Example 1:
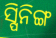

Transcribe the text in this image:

ସ୍ପିନିଙ୍ଗ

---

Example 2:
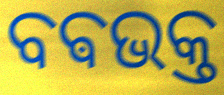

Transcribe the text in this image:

ବଵଭକ୍ତ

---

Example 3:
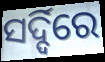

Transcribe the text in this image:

ସର୍ଦ୍ଦିରେ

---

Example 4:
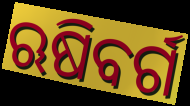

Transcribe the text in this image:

ଋଷିବର୍ଗ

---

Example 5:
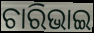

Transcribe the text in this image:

ଚାରିଭାଇ